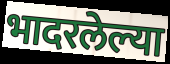
भादरलेल्या